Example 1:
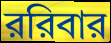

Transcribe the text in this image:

ররিবার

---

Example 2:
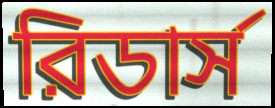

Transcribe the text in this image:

রিডার্স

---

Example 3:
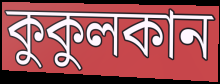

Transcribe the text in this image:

কুকুলকান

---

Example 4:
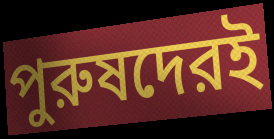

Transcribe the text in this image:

পুরুষদেরই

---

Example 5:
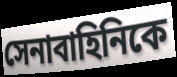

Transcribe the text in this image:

সেনাবাহিনিকে